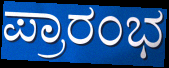
ಪ್ರಾರಂಭ